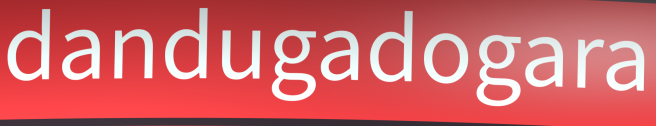
dandugadogara